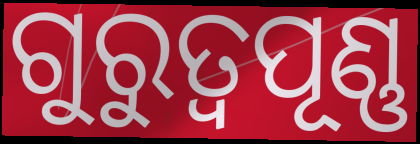
ଗୁରୁତ୍ବପୂଣ୍ଣ